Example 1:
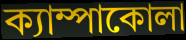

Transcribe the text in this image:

ক্যাম্পাকোলা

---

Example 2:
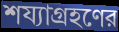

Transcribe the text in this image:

শয্যাগ্রহণের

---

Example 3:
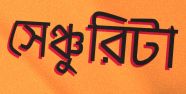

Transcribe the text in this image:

সেঞ্চুরিটা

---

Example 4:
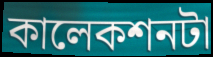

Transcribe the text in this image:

কালেকশনটা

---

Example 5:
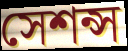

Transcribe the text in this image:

সেশন্স